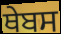
ਥੇਬਸ